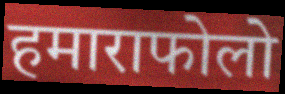
हमाराफोलो